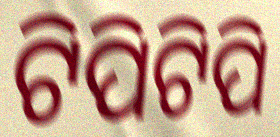
ଟିପିଟିପି